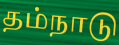
தம்நாடு